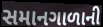
સમાનગાળાની